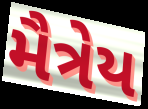
મૈત્રેય